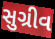
સુગ્રીવ